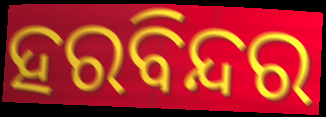
ହରବିନ୍ଦର